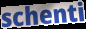
schenti